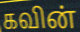
கவின்